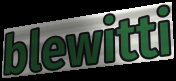
blewitti